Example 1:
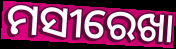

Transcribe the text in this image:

ମସୀରେଖା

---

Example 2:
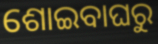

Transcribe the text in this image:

ଶୋଇବାଘରୁ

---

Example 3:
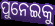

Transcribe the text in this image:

ପୁନେଇକୁ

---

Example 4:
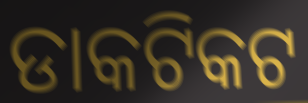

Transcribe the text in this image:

ଡାକଟିକଟ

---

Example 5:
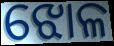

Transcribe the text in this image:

ଝୋଳ